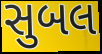
સુબલ